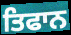
ਤਿਫਾਨ